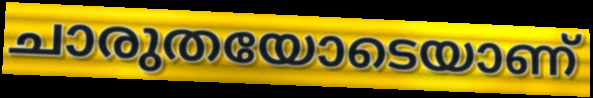
ചാരുതയോടെയാണ്